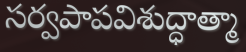
సర్వపాపవిశుద్ధాత్మా